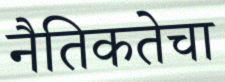
नैतिकतेचा